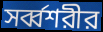
সর্ব্বশরীর